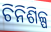
ଚିନିଶିଳ୍ପ